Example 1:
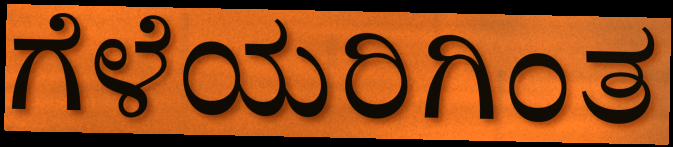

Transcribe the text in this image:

ಗೆಳೆಯರಿಗಿಂತ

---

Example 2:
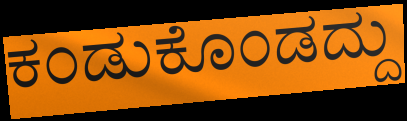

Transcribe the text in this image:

ಕಂಡುಕೊಂಡದ್ದು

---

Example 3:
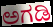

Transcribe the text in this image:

ಅಗಡಿ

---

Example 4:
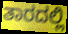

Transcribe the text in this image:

ತಾರದಲ್ಲಿ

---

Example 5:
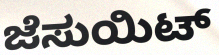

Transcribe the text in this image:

ಜೆಸುಯಿಟ್